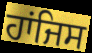
ਹਾਂਜਿਸ